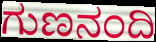
ಗುಣನಂದಿ